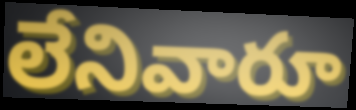
లేనివారూ